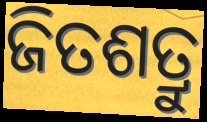
ଜିତଶତ୍ରୁ